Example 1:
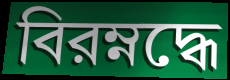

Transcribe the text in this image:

বিরম্নদ্ধে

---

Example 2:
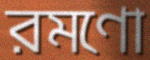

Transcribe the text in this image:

রমণো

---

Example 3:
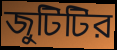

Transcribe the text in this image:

জুটিটির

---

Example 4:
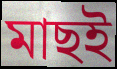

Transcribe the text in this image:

মাছই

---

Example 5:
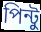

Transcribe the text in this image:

পিন্টু